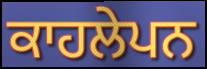
ਕਾਹਲੇਪਨ